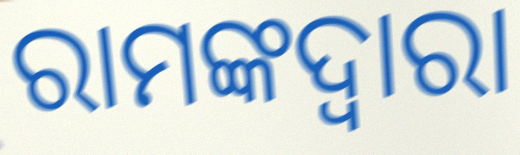
ରାମଙ୍କଦ୍ଵାରା